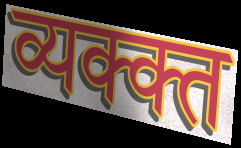
व्यक्क्त